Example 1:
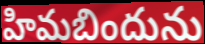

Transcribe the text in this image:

హిమబిందును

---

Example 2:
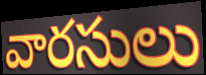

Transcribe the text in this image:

వారసులు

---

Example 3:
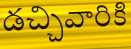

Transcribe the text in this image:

డచ్చివారికి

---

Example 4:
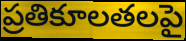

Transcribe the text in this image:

ప్రతికూలతలపై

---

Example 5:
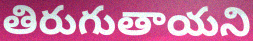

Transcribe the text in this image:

తిరుగుతాయని